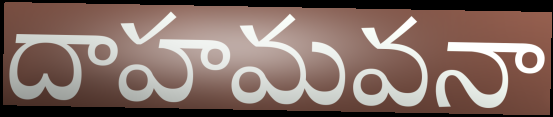
దాహమవనా